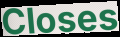
Closes